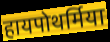
हायपोथर्मिया